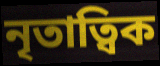
নৃতাত্বিক